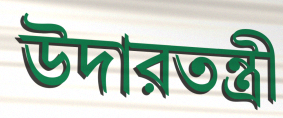
উদারতন্ত্রী